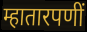
म्हातारपणीं